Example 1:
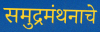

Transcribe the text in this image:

समुद्रमंथनाचे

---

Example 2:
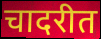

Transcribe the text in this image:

चादरीत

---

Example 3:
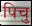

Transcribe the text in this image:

पिचु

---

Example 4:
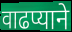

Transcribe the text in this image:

वाढप्याने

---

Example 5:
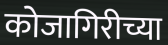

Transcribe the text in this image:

कोजागिरीच्या